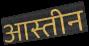
आस्तीन